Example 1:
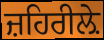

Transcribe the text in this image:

ਜ਼ਹਿਰੀਲ਼ੇ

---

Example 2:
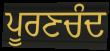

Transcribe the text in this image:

ਪੂਰਣਚੰਦ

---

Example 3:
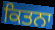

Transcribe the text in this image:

ਕਿਤਨਾ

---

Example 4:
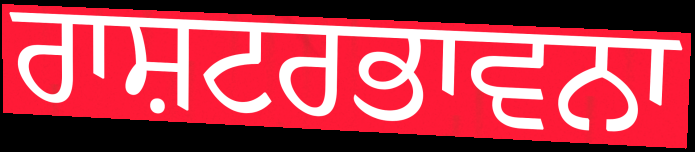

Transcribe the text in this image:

ਰਾਸ਼ਟਰਭਾਵਨਾ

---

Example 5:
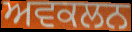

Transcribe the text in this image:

ਅਵਕਲਨ